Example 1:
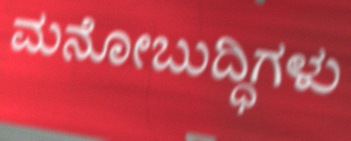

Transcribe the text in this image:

ಮನೋಬುದ್ಧಿಗಳು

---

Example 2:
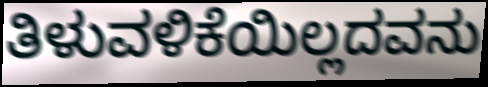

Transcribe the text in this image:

ತಿಳುವಳಿಕೆಯಿಲ್ಲದವನು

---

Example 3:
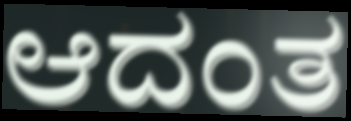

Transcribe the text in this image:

ಆದಂತ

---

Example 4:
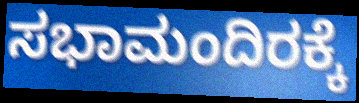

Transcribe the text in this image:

ಸಭಾಮಂದಿರಕ್ಕೆ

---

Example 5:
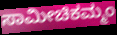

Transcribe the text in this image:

ಸಾಮೀಚಿಕಮ್ಮಂ